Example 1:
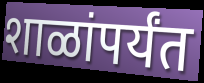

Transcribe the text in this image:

शाळांपर्यंत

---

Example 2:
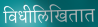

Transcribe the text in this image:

विधीलिखितात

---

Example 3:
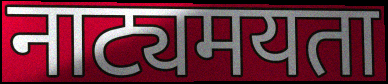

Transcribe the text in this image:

नाट्यमयता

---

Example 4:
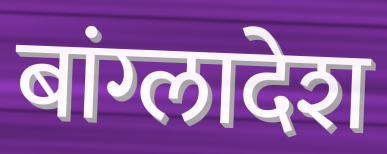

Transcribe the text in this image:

बांग्लादेश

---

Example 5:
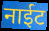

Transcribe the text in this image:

नाईट